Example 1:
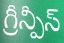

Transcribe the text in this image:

గ్రీన్పీస్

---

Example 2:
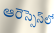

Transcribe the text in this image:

ఆరెస్సెస్‌లో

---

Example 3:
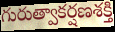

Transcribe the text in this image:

గురుత్వాకర్షణశక్తి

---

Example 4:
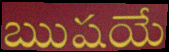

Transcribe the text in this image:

ఋషయే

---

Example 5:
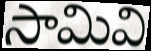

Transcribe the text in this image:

సామివి